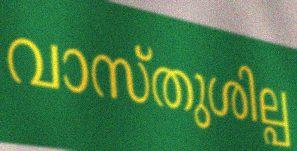
വാസ്തുശില്പ